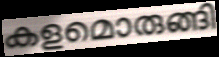
കളമൊരുങ്ങി